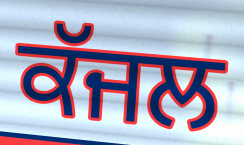
ਕੱਜਲ